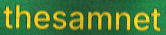
thesamnet